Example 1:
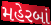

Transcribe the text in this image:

મહેરબાં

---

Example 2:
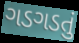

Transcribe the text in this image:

ગડગડતું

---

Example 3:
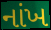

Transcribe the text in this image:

નાંખ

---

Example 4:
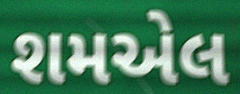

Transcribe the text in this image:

શમએલ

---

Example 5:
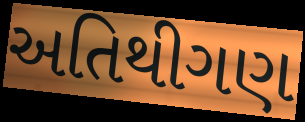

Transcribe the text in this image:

અતિથીગણ